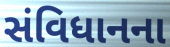
સંવિધાનના